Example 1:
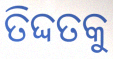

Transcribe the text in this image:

ତିଦ୍ଦତକୁ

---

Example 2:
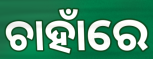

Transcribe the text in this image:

ଚାହାଁରେ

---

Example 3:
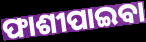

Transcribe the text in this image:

ଫାଶୀପାଇବା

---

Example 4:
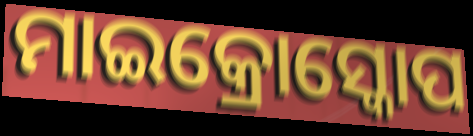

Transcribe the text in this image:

ମାଇକ୍ରୋସ୍କୋପ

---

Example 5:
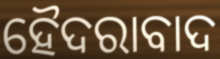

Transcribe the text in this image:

ହୈଦରାବାଦ